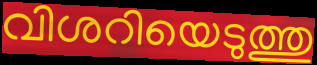
വിശറിയെടുത്തു